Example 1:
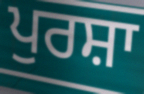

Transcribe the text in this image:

ਪੁਰਸ਼ਾ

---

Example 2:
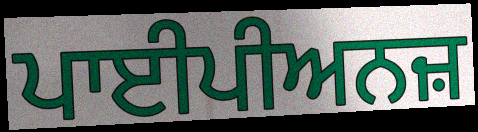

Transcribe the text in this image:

ਪਾਈਪੀਅਨਜ਼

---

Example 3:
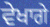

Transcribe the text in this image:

ਵੇਖਾਗੇ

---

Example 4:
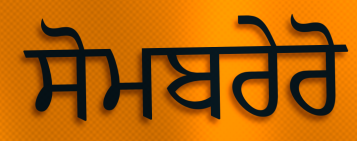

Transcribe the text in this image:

ਸੋਮਬਰੇਰੋ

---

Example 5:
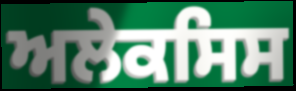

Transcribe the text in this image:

ਅਲੇਕਸਿਸ